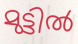
മുട്ടിൽ